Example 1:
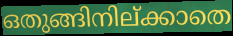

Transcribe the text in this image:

ഒതുങ്ങിനില്ക്കാതെ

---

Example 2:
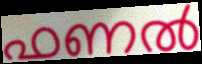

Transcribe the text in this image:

ഫണൽ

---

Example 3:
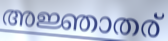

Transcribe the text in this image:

അജ്ഞാതര്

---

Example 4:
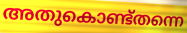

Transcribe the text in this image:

അതുകൊണ്ട്തന്നെ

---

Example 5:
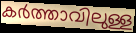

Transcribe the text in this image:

കർത്താവിലുള്ള